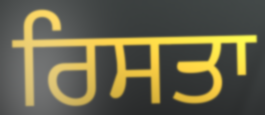
ਰਿਸਤਾ